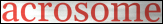
acrosome